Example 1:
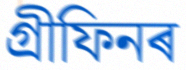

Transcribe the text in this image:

গ্ৰীফিনৰ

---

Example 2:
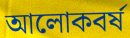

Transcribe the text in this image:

আলোকবৰ্ষ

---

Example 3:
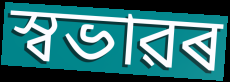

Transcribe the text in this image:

স্বভাৱৰ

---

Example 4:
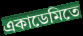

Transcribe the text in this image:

একাডেমিতে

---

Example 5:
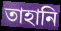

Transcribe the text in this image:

তাহানি